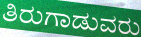
ತಿರುಗಾಡುವರು